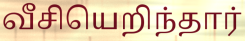
வீசியெறிந்தார்